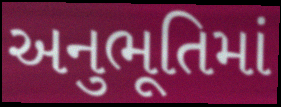
અનુભૂતિમાં